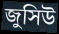
জুসিউ